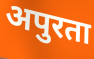
अपुरता